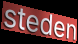
steden